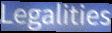
Legalities